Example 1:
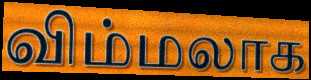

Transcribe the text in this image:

விம்மலாக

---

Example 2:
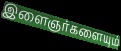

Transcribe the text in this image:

இளைஞர்களையும்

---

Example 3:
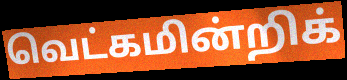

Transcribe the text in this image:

வெட்கமின்றிக்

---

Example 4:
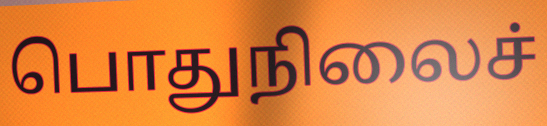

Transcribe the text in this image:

பொதுநிலைச்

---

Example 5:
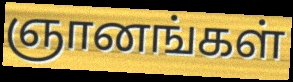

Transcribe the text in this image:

ஞானங்கள்